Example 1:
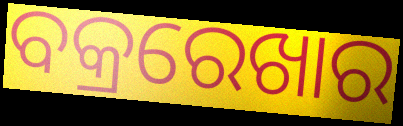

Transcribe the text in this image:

ବକ୍ରରେଖାର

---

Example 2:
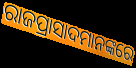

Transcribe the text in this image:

ରାଜପ୍ରାସାଦମାନଙ୍କରେ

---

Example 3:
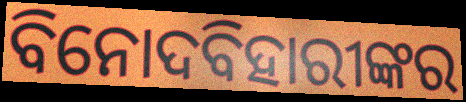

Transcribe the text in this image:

ବିନୋଦବିହାରୀଙ୍କର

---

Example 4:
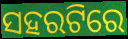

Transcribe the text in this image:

ସହରଟିରେ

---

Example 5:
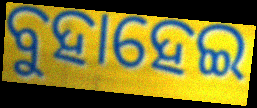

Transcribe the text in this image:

ବୁହାହେଇ